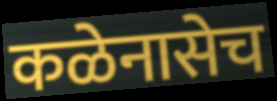
कळेनासेच